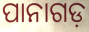
ପାନାଗଡ଼